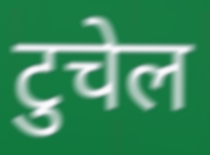
टुचेल